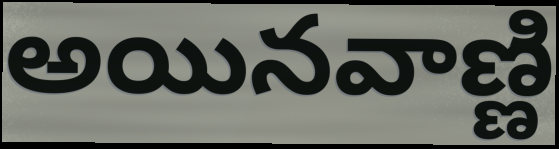
అయినవాణ్ణి